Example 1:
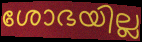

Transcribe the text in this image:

ശോഭയില്ല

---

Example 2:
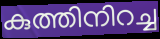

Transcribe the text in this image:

കുത്തിനിറച്ച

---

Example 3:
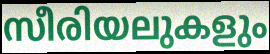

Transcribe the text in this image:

സീരിയലുകളും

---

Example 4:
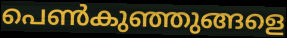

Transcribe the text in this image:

പെൺകുഞ്ഞുങ്ങളെ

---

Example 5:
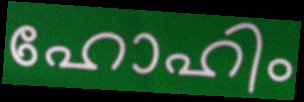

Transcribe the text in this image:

ഹോഹിം